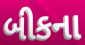
બીકના